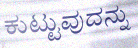
ಕುಟ್ಟುವುದನ್ನು